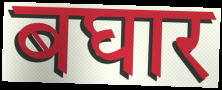
बघार